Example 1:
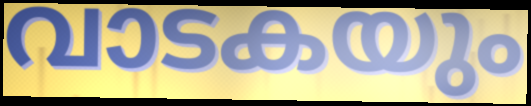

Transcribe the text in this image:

വാടകയും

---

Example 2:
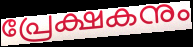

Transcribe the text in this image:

പ്രേക്ഷകനും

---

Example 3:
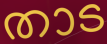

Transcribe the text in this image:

താട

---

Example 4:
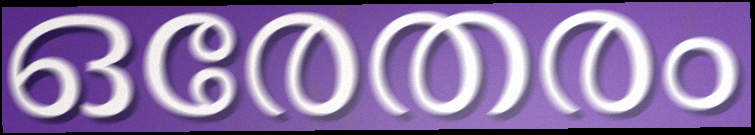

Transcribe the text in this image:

ഒരേതരം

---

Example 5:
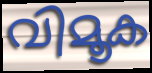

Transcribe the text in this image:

വിമൂക